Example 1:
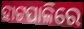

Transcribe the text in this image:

ହାଟପାଳିରେ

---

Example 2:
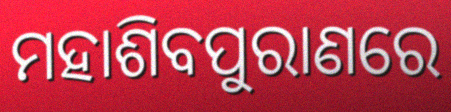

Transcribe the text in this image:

ମହାଶିବପୁରାଣରେ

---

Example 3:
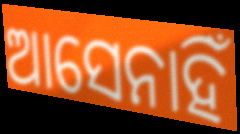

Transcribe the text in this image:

ଆସେନାହିଁ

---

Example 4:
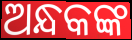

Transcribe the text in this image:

ଅନ୍ଧକଙ୍କ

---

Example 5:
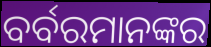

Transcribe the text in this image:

ବର୍ବରମାନଙ୍କର